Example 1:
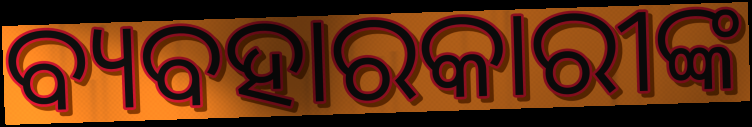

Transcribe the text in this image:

ବ୍ୟବହାରକାରୀଙ୍କ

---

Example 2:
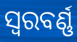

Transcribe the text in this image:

ସ୍ୱରବର୍ଣ୍ଣ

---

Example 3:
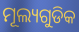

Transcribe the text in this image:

ମୂଲ୍ୟଗୁଡିକ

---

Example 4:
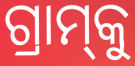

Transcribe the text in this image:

ଗ୍ରାମ୍‌କୁ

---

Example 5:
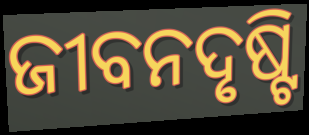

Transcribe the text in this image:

ଜୀବନଦୃଷ୍ଟି